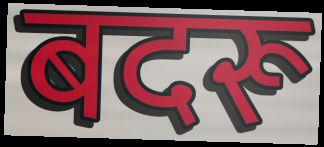
बदरू